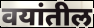
वयांतील